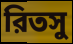
রিতসু